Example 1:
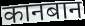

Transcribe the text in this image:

कानबान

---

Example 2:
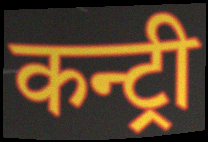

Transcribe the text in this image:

कन्ट्री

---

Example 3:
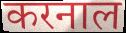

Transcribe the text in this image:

करनाल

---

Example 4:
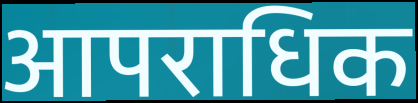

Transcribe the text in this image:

आपराधिक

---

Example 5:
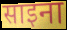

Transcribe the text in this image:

साइना